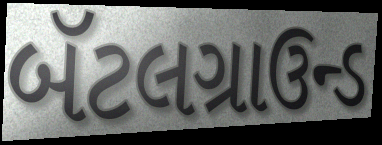
બૅટલગ્રાઉન્ડ